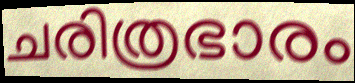
ചരിത്രഭാരം